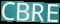
CBRE